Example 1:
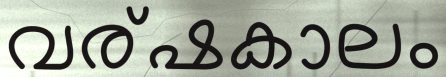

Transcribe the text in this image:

വര്ഷകാലം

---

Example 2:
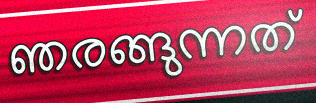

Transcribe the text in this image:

ഞരങ്ങുന്നത്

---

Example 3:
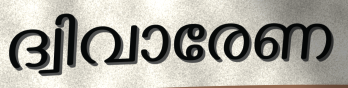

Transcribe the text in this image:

ദ്വിവാരേണ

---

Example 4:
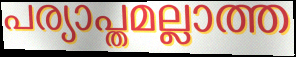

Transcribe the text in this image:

പര്യാപ്തമല്ലാത്ത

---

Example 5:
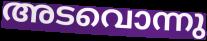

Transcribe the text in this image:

അടവൊന്നു